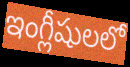
ఇంగ్లీషులలో